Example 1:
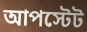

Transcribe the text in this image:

আপস্টেট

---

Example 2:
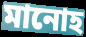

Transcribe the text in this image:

মানোহ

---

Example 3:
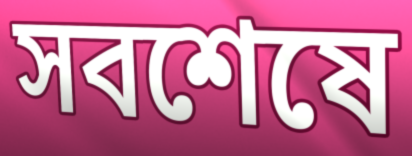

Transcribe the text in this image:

সবশেষে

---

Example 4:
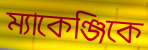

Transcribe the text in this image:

ম্যাকেঞ্জিকে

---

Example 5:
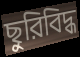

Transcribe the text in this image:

ছুরিবিদ্ধ